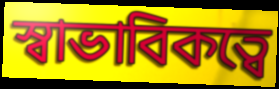
স্বাভাবিকত্বে